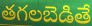
తగలబెడితే